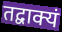
तद्वाक्यं